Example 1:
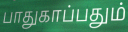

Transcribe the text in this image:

பாதுகாப்பதும்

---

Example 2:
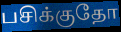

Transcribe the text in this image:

பசிக்குதோ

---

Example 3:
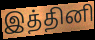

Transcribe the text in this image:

இத்தினி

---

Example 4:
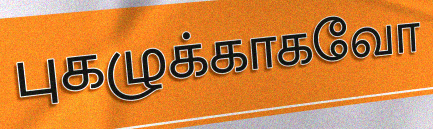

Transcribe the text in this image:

புகழுக்காகவோ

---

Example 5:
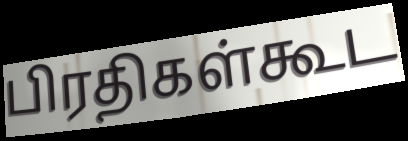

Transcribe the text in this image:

பிரதிகள்கூட